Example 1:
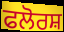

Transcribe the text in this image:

ਫਲੋਰਸ਼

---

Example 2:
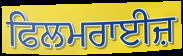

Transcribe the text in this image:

ਫਿਲਮਰਾਈਜ਼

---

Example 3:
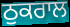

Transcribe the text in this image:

ਠੁਕਰਾਲ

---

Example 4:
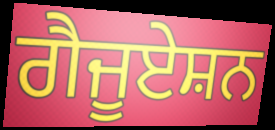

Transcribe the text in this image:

ਗੈਜੂਏਸ਼ਨ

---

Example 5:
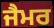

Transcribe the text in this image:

ਜੈਮਰ